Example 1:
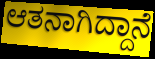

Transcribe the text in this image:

ಆತನಾಗಿದ್ದಾನೆ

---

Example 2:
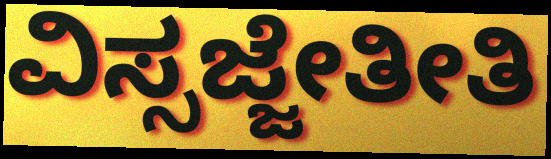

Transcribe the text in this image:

ವಿಸ್ಸಜ್ಜೇತೀತಿ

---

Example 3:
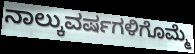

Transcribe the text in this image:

ನಾಲ್ಕುವರ್ಷಗಳಿಗೊಮ್ಮೆ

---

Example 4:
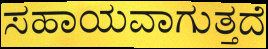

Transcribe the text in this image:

ಸಹಾಯವಾಗುತ್ತದೆ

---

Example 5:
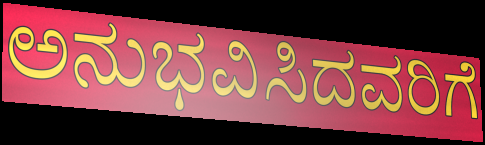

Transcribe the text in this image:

ಅನುಭವಿಸಿದವರಿಗೆ